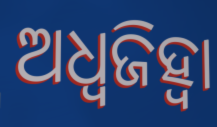
ଅଧ୍ୱଜିହ୍ବା